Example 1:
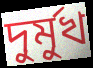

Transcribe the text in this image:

দুর্মুখ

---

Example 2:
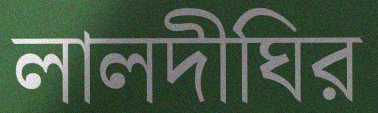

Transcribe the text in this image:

লালদীঘির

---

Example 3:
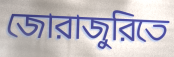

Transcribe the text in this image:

জোরাজুরিতে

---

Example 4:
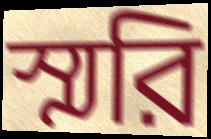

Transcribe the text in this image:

স্মরি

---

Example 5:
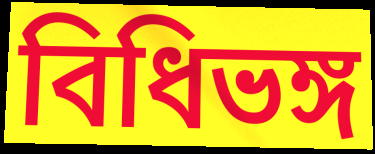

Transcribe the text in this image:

বিধিভঙ্গ